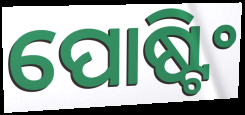
ପୋଷ୍ଟିଂ